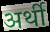
अर्थी